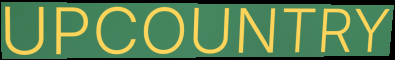
UPCOUNTRY